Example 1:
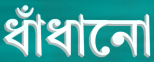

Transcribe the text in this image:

ধাঁধানো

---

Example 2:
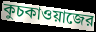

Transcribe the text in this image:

কুচকাওয়াজের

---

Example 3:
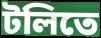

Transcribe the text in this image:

টলিতে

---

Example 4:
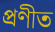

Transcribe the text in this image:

প্রণীত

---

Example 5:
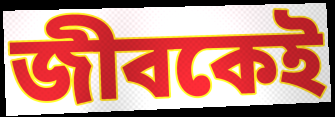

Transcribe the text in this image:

জীবকেই